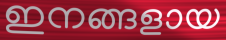
ഇനങ്ങളായ